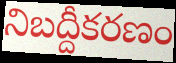
నిబద్దీకరణం